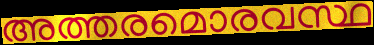
അത്തരമൊരവസ്ഥ